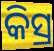
କିସ୍ର